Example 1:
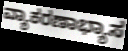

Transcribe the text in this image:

ವ್ಯಾಕರಣಾಭ್ಯಾಸ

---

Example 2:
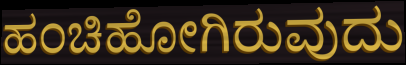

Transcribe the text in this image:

ಹಂಚಿಹೋಗಿರುವುದು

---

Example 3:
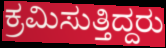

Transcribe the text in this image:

ಕ್ರಮಿಸುತ್ತಿದ್ದರು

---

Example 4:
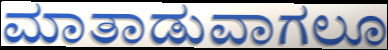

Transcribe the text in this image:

ಮಾತಾಡುವಾಗಲೂ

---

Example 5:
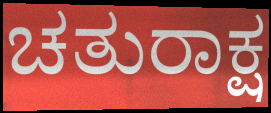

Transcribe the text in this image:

ಚತುರಾಕ್ಷ